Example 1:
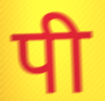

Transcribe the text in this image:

पी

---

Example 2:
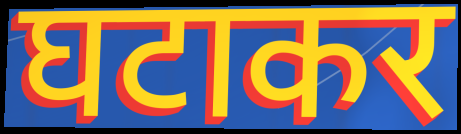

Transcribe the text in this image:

घटाकर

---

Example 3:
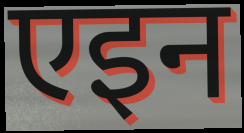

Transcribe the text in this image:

एइन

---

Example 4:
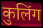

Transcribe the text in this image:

कुलिंग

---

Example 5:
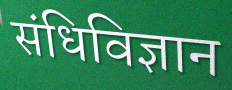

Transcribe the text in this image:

संधिविज्ञान